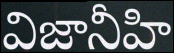
విజానీహి